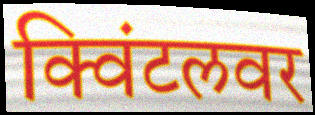
क्विंटलवर